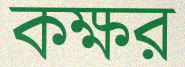
কক্ষর